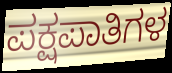
ಪಕ್ಷಪಾತಿಗಳ